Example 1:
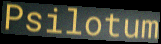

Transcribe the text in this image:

Psilotum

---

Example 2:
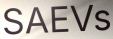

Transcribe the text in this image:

SAEVs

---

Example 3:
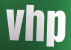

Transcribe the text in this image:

vhp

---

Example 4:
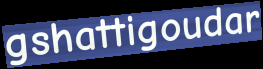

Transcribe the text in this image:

gshattigoudar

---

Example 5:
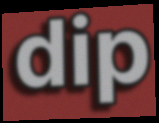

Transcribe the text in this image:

dip